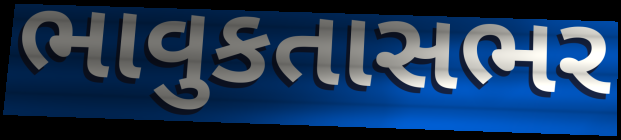
ભાવુકતાસભર